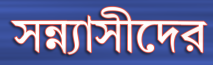
সন্ন্যাসীদের